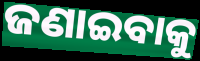
ଜଣାଇବାକୁ